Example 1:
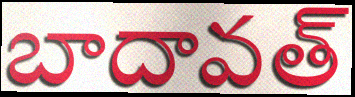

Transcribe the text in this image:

బాదావత్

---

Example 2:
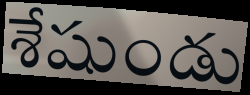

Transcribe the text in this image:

శేషుండు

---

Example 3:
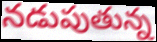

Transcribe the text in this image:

నడుపుతున్న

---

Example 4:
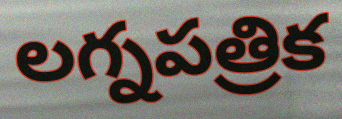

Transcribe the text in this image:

లగ్నపత్రిక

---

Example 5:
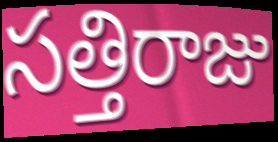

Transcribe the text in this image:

సత్తిరాజు